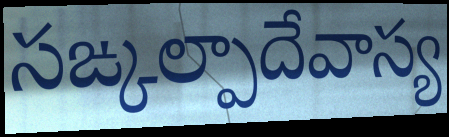
సఙ్కల్పాదేవాస్య